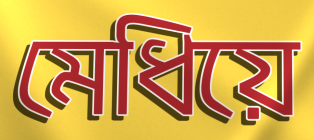
মেধিয়ে